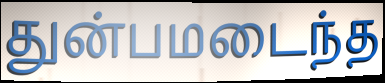
துன்பமடைந்த